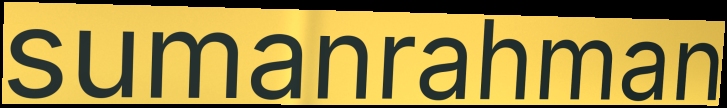
sumanrahman